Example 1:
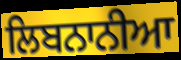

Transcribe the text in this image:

ਲਿਬਨਾਨੀਆ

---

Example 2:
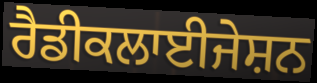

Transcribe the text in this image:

ਰੈਡੀਕਲਾਈਜੇਸ਼ਨ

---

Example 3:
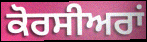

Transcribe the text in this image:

ਕੋਰਸੀਅਰਾਂ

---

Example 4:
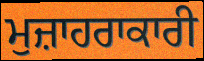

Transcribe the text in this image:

ਮੁਜ਼ਾਹਰਾਕਾਰੀ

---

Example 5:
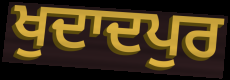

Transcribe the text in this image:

ਖੁਦਾਦਪੁਰ